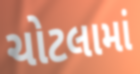
ચોટલામાં